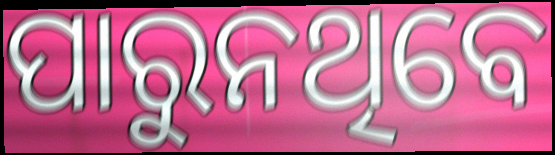
ପାରୁନଥିବେ